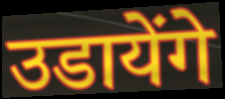
उडायेंगे